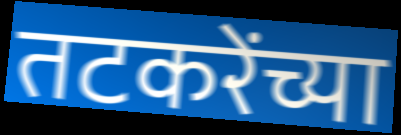
तटकरेंच्या